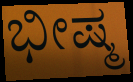
ಭೀಷ್ಮ